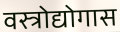
वस्त्रोद्योगास